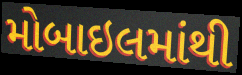
મોબાઇલમાંથી